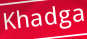
Khadga